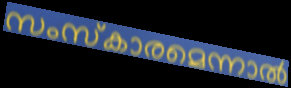
സംസ്കാരമെന്നാൽ